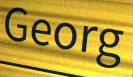
Georg